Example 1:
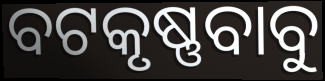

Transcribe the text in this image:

ବଟକୃଷ୍ଣବାବୁ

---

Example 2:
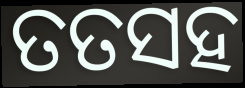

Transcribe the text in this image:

ତତସହ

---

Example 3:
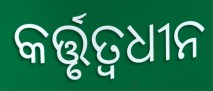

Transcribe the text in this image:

କର୍ତ୍ତୃତ୍ୱଧୀନ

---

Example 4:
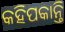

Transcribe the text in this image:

କହିପକାନ୍ତି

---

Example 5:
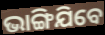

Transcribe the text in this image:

ଭାଙ୍ଗିଯିବେ